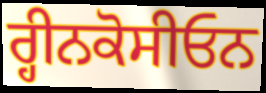
ਰ੍ਹੀਨਕੋਸੀਓਨ